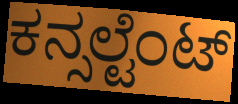
ಕನ್ಸಲ್ಟೆಂಟ್